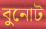
বুনোট